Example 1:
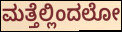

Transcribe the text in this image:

ಮತ್ತೆಲ್ಲಿಂದಲೋ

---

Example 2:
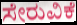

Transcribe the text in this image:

ಸೇರುವಿಕೆ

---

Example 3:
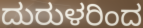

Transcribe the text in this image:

ದುರುಳರಿಂದ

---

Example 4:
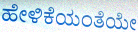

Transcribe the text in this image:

ಹೇಳಿಕೆಯಂತೆಯೇ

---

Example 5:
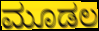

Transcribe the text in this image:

ಮೂಡಲ